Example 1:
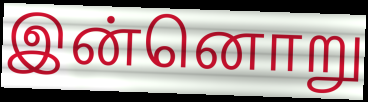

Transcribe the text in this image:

இன்னொறு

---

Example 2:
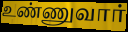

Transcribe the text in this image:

உண்ணுவார்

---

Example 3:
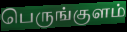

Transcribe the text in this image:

பெருங்குளம்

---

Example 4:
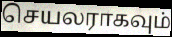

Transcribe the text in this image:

செயலராகவும்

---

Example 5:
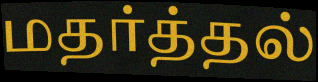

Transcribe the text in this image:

மதர்த்தல்